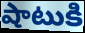
షాటుకి